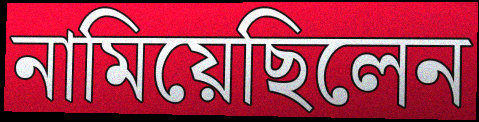
নামিয়েছিলেন